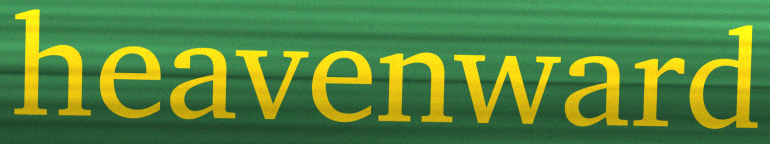
heavenward